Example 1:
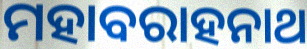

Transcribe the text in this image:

ମହାବରାହନାଥ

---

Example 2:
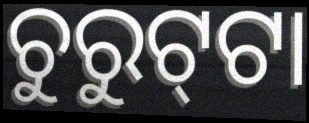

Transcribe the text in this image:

ଚୁରୁଟ୍‍ଟା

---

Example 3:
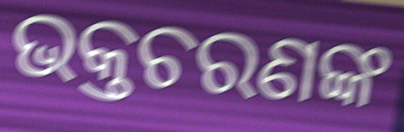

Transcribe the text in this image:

ଭକ୍ତଚରଣଙ୍କ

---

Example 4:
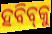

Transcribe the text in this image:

ହବିବ୍‌କୁ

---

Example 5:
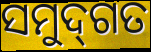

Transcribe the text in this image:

ସମୁଦ୍‌ଗତ